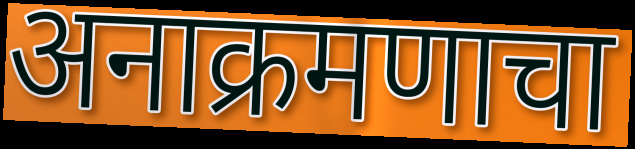
अनाक्रमणाचा